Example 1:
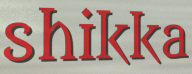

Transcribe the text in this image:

shikka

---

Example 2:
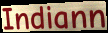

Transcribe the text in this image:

Indiann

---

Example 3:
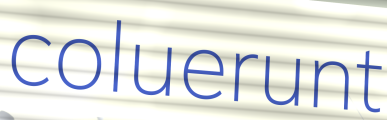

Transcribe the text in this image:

coluerunt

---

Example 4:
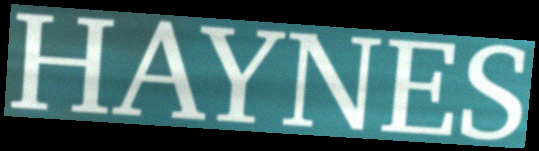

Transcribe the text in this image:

HAYNES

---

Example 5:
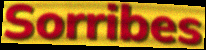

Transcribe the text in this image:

Sorribes